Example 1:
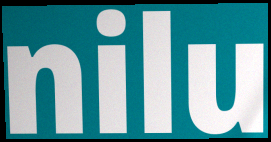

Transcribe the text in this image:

nilu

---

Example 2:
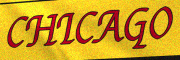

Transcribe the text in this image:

CHICAGO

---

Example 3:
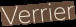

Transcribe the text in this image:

Verrier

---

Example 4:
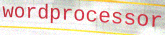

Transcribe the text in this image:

wordprocessor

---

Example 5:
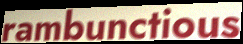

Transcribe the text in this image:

rambunctious